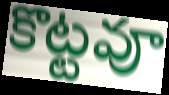
కొట్టవూ